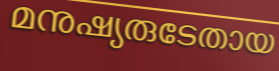
മനുഷ്യരുടേതായ